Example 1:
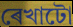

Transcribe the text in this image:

ৰেখাটো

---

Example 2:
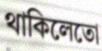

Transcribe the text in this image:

থাকিলেতো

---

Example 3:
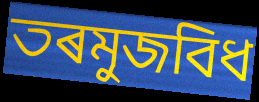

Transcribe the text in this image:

তৰমুজবিধ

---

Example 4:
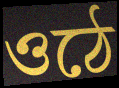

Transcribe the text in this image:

ওঠে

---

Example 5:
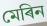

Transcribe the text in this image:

মেৰিন